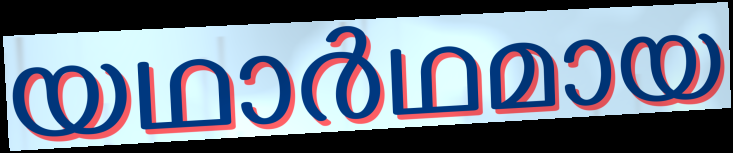
യഥാർഥമായ